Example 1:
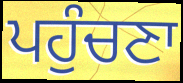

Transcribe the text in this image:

ਪਹੁੰਚਣਾ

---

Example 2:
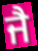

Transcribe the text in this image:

ਜੈ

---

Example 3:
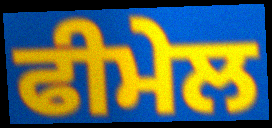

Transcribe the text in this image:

ਫੀਮੇਲ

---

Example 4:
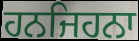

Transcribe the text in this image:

ਹਨਜਿਹਨਾ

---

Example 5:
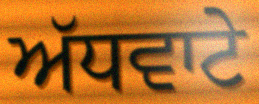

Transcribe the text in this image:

ਅੱਧਵਾਟੇ